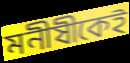
মনীষীকেই